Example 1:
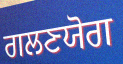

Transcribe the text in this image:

ਗਲਣਯੋਗ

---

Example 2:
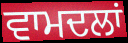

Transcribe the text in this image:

ਵਾਮਦਲਾਂ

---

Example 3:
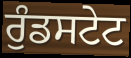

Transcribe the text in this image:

ਰੁੰਡਸਟੇਟ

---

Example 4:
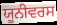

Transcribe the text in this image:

ਯੂਨੀਵਰਸ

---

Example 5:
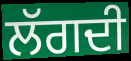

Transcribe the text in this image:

ਲੱਗਦੀ